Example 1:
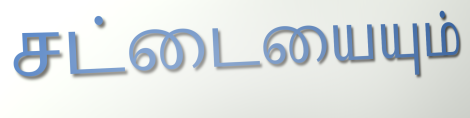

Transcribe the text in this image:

சட்டையையும்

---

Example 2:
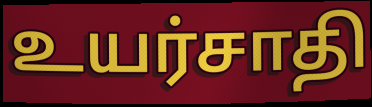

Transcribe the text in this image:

உயர்சாதி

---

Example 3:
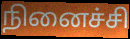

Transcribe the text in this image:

நினைச்சி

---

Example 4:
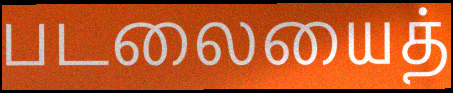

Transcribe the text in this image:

படலையைத்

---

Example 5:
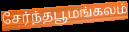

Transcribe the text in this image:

சேர்ந்தபூமங்கலம்